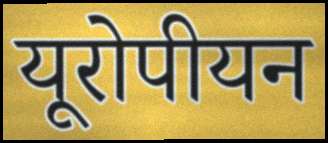
यूरोपीयन